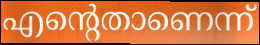
എന്റെതാണെന്ന്